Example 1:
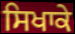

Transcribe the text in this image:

ਸਿਖਾਕੇ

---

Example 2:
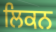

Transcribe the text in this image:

ਲਿਕਨ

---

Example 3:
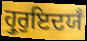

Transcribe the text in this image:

ਹ੍ਰੁਰੁਇਦਯਁ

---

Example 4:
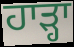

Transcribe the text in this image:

ਹਾੜ੍ਹਾ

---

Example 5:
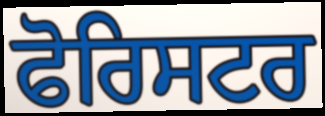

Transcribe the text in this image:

ਫੋਰਿਸਟਰ